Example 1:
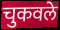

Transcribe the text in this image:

चुकवले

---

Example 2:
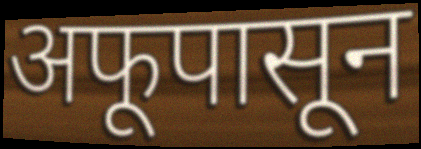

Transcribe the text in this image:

अफूपासून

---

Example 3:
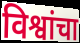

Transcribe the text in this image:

विश्वांचा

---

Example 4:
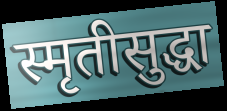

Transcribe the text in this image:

स्मृतीसुद्धा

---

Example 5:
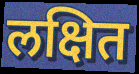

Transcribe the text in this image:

लक्षित